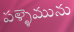
పళ్ళెమును